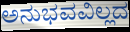
ಅನುಭವವಿಲ್ಲದ